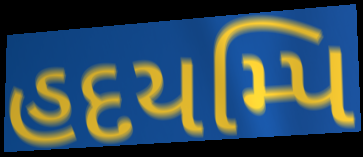
હદયમ્પિ